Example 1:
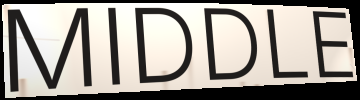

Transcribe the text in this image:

MIDDLE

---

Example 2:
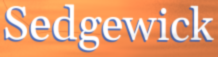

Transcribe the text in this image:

Sedgewick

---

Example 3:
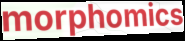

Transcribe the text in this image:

morphomics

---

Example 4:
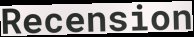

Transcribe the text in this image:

Recension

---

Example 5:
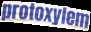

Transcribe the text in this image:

protoxylem